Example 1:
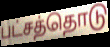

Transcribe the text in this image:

பட்சத்தொடு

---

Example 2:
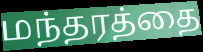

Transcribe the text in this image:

மந்தரத்தை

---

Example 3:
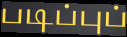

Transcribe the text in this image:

படிப்புப்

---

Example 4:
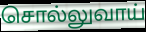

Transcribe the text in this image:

சொல்லுவாய்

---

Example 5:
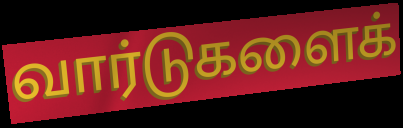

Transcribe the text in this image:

வார்டுகளைக்